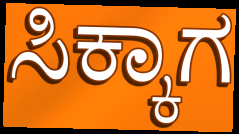
ಸಿಕ್ಕಾಗ